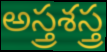
అస్త్రశస్త్ర